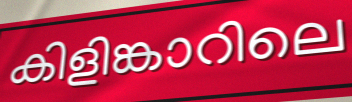
കിളിങ്കാറിലെ